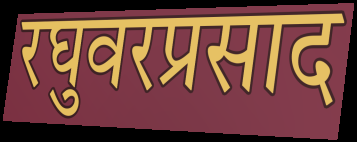
रघुवरप्रसाद